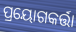
ପ୍ରୟୋଗକର୍ତ୍ତା